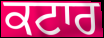
ਕਟਾਰ